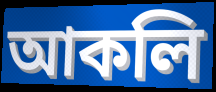
আকলি